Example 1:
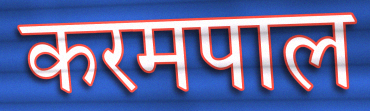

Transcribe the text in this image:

करमपाल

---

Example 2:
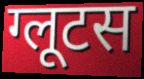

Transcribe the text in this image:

ग्लूटस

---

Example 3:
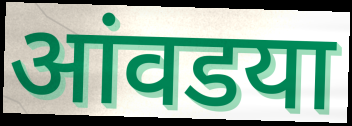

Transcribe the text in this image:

आंवडया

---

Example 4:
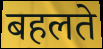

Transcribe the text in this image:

बहलते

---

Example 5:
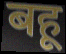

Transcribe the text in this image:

बहू